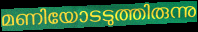
മണിയോടടുത്തിരുന്നു